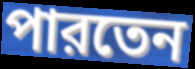
পারতেন